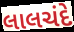
લાલચંદે